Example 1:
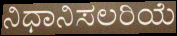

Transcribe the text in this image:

ನಿಧಾನಿಸಲರಿಯೆ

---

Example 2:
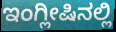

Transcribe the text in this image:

ಇಂಗ್ಲೀಷಿನಲ್ಲಿ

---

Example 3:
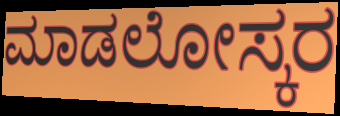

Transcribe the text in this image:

ಮಾಡಲೋಸ್ಕರ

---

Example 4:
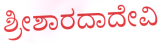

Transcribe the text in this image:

ಶ್ರೀಶಾರದಾದೇವಿ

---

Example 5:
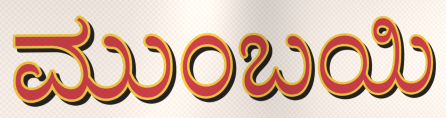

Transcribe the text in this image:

ಮುಂಬಯಿ